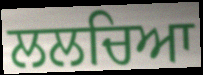
ਲਲਚਿਆ